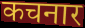
कचनार